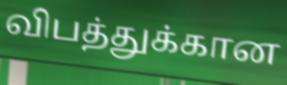
விபத்துக்கான